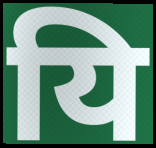
यि